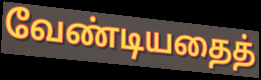
வேண்டியதைத்